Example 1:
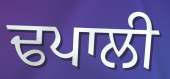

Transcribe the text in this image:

ਢਪਾਲੀ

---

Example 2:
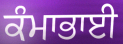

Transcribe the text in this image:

ਕੰਮਾਭਾਈ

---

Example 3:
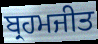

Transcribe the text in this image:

ਬ੍ਰਹਮਜੀਤ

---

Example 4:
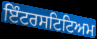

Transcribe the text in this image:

ਇੰਟਰਸਟਿਟਿਅਮ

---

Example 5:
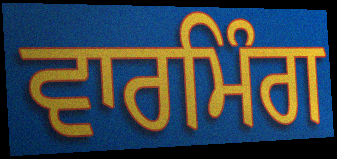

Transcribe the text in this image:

ਵਾਰਮਿੰਗ